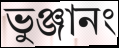
ভুঞ্জানং